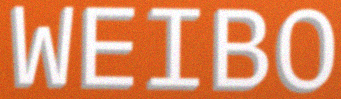
WEIBO